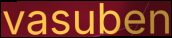
vasuben